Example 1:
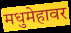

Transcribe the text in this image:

मधुमेहावर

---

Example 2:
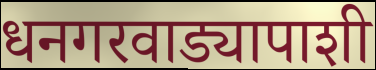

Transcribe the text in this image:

धनगरवाड्यापाशी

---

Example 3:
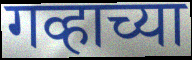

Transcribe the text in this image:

गव्हाच्या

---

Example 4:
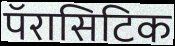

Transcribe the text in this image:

पॅरासिटिक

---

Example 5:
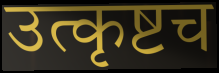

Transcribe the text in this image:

उत्कृष्टच